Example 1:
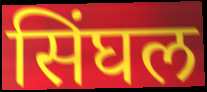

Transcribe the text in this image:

सिंघल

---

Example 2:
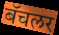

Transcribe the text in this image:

बॅचलर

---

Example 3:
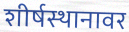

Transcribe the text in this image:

शीर्षस्थानावर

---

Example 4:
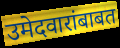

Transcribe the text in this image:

उमेदवारांबाबत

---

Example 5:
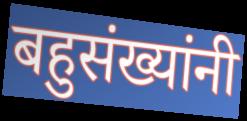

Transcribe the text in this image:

बहुसंख्यांनी